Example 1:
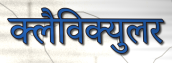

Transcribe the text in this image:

क्लैविक्युलर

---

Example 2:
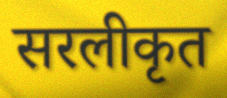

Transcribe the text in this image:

सरलीकृत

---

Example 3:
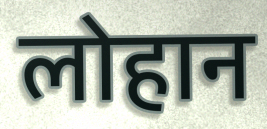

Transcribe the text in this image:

लोहान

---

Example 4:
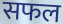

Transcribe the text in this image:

सफल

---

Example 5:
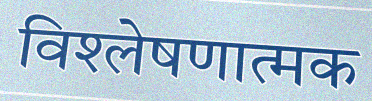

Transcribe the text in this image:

विश्लेषणात्मक